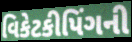
વિકેટકીપિંગની